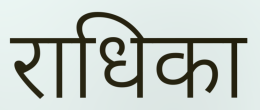
राधिका